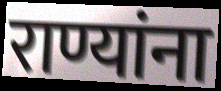
राण्यांना